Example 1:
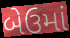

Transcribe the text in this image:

બેઉમાં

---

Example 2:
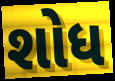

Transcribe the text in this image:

શોધ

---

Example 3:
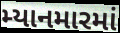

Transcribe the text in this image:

મ્યાનમારમાં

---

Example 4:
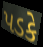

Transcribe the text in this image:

પડકે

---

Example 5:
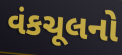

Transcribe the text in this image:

વંકચૂલનો